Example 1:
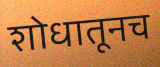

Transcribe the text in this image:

शोधातूनच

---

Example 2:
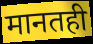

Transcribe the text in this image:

मानतही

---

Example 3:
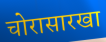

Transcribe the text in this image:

चोरासारखा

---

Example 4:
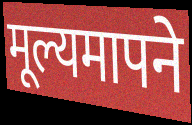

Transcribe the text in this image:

मूल्यमापने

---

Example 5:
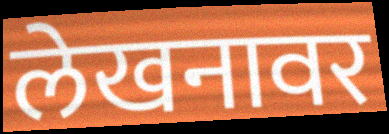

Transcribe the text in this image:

लेखनावर